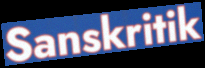
Sanskritik